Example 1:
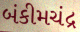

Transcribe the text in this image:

બંકીમચંદ્ર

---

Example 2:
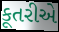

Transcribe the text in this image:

કૂતરીએ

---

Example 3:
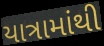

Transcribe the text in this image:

યાત્રામાંથી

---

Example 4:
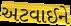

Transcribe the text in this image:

અટવાઈને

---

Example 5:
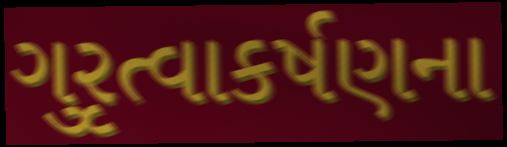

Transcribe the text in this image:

ગુરૃત્વાકર્ષણના